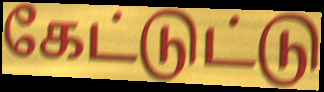
கேட்டுட்டு